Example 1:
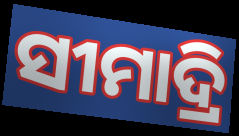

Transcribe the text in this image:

ସୀମାଦ୍ରି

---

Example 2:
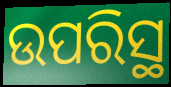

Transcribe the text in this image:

ଉପରିସ୍ଥ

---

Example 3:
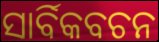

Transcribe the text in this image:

ସାର୍ବିକବଚନ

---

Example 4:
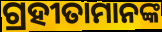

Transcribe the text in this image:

ଗ୍ରହୀତାମାନଙ୍କ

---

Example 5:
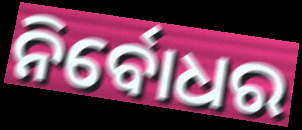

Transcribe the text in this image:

ନିର୍ବୋଧର